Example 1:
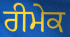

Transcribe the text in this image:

ਰੀਮੇਕ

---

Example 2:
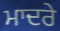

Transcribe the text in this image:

ਮਾਦਰੇ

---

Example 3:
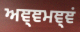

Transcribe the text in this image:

ਅਞ੍ਞਮਞ੍ਞਂ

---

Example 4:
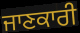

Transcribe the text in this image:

ਜਾਣਕਾਰੀ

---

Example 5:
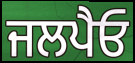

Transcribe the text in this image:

ਜਲਪੈਓ